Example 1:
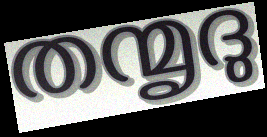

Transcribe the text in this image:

തന്മൃദു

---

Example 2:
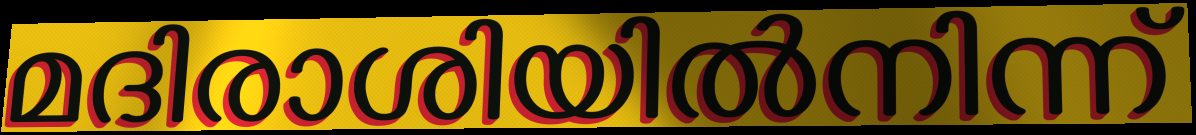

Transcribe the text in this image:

മദിരാശിയിൽനിന്ന്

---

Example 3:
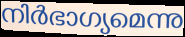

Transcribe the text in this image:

നിർഭാഗ്യമെന്നു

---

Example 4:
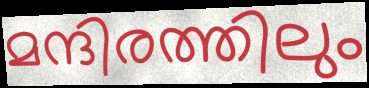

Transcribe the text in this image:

മന്ദിരത്തിലും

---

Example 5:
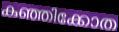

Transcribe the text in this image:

കുഞ്ഞിക്കോത